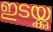
ഇടയ്ക്കു